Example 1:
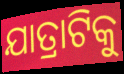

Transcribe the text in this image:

ଯାତ୍ରାଟିକୁ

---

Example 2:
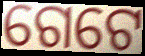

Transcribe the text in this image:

ଗେଟେ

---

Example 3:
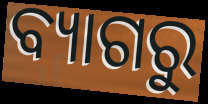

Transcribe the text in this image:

ବ୍ୟାଗରୁ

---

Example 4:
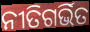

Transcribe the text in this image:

ନୀତିଗର୍ଭିତ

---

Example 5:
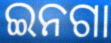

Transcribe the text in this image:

ଇନଗା